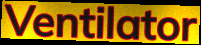
Ventilator